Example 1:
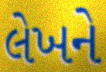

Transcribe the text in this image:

લેખને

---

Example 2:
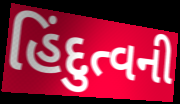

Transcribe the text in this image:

હિંદુત્વની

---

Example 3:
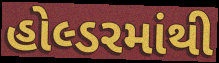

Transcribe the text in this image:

હોલ્ડરમાંથી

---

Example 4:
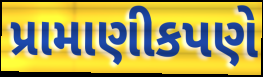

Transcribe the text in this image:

પ્રામાણીકપણે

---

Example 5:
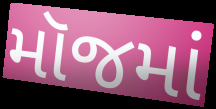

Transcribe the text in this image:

મૉજમાં